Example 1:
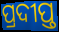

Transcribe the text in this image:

ପ୍ରଦୀପ୍ତ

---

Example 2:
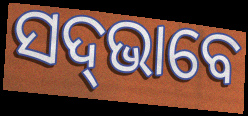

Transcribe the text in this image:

ସଦ୍‌ଭାବେ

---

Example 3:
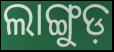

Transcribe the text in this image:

ଲାଙ୍ଗୁଡ଼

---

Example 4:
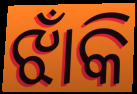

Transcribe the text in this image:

ଝାଁକି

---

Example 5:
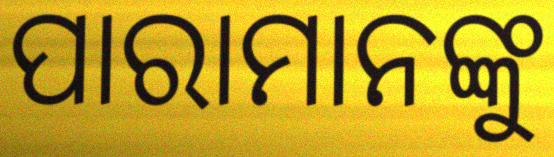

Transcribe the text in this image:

ପାରାମାନଙ୍କୁ